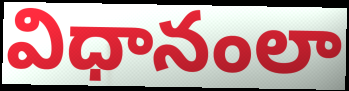
విధానంలా